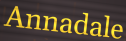
Annadale